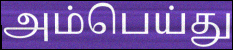
அம்பெய்து